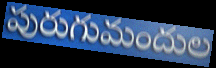
పురుగుమందుల